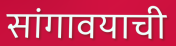
सांगावयाची